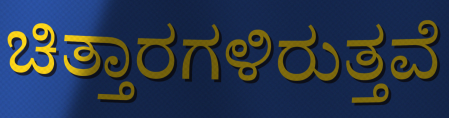
ಚಿತ್ತಾರಗಳಿರುತ್ತವೆ